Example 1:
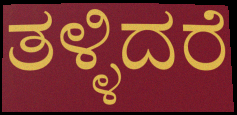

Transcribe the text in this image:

ತಳ್ಳಿದರೆ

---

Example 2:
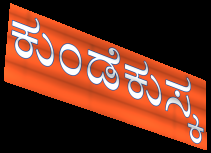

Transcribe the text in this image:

ಕುಂಡೆಕುಸ್ಕ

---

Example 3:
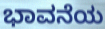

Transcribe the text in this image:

ಭಾವನೆಯ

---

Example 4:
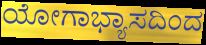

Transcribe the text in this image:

ಯೋಗಾಭ್ಯಾಸದಿಂದ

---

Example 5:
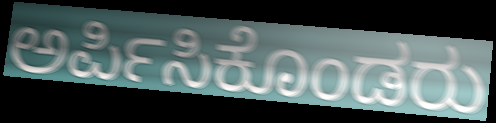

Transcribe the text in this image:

ಅರ್ಪಿಸಿಕೊಂಡರು